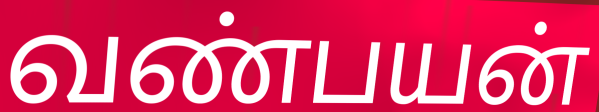
வண்பயன்